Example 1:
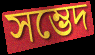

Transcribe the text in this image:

সম্ভেদ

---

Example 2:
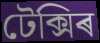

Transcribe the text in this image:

টেক্সিৰ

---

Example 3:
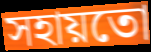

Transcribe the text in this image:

সহায়তো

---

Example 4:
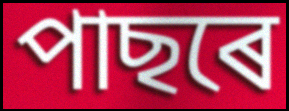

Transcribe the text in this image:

পাছৰে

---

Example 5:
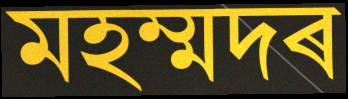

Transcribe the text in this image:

মহম্মদৰ